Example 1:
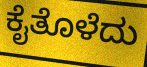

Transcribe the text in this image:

ಕೈತೊಳೆದು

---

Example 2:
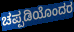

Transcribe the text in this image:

ಚಪ್ಪಡಿಯೊಂದರ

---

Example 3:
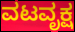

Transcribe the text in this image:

ವಟವೃಕ್ಷ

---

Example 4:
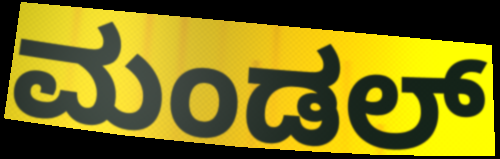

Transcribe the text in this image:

ಮಂಡಲ್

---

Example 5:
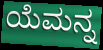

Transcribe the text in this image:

ಯೆಮನ್ನ